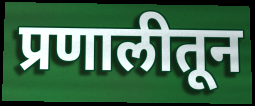
प्रणालीतून